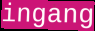
ingang